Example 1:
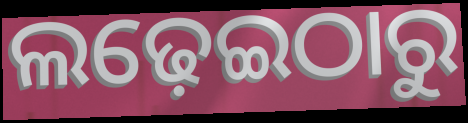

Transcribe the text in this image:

ଲଢ଼େଇଠାରୁ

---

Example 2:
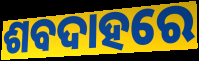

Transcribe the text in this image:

ଶବଦାହରେ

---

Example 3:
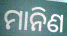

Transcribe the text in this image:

ମାନିଣ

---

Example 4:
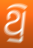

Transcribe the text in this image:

ଥ୍ରି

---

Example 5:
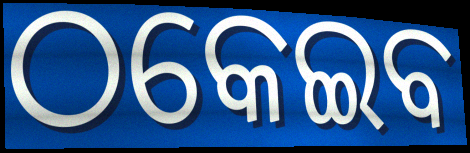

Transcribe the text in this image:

ଠକେଇବ